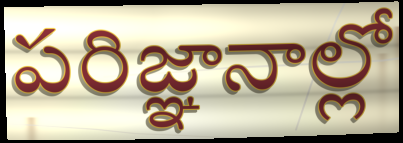
పరిజ్ఞానాల్లో